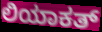
ಲಿಯಾಕತ್